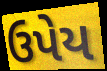
ઉપેય